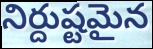
నిర్దుష్టమైన